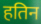
हतिन